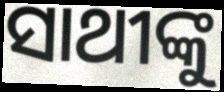
ସାଥୀଙ୍କୁ